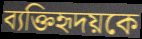
ব্যক্তিহৃদয়কে